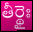
తీర్థైః